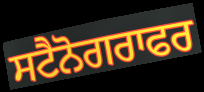
ਸਟੈਨੋਗਰਾਫਰ